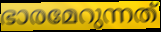
ഭാരമേറുന്നത്